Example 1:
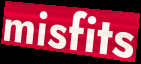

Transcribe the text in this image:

misfits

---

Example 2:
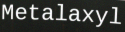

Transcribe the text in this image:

Metalaxyl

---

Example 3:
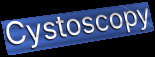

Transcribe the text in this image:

Cystoscopy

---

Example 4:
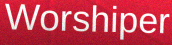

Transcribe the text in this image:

Worshiper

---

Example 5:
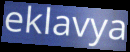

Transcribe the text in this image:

eklavya